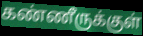
கண்ணீருக்குள்